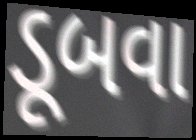
ડૂબવા